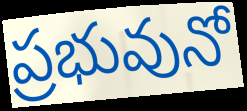
ప్రభువునో